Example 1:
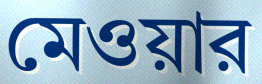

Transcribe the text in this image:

মেওয়ার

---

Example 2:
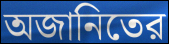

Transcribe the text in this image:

অজানিতের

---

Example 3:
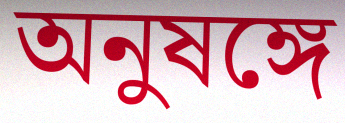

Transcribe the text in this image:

অনুষঙ্গে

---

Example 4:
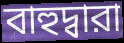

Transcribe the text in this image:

বাহুদ্বারা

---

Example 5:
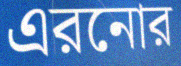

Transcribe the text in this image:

এরনোর